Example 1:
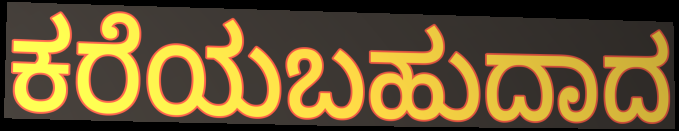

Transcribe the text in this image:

ಕರೆಯಬಹುದಾದ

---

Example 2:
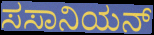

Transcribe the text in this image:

ಸಸಾನಿಯನ್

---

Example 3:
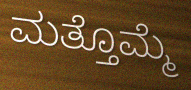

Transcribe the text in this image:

ಮತ್ತೊಮ್ಮೆ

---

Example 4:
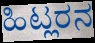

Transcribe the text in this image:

ಹಿಟ್ಲರನ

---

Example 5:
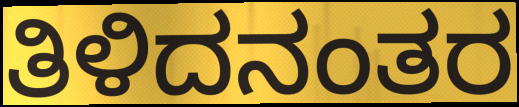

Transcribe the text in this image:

ತಿಳಿದನಂತರ